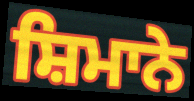
ਸ਼ਿਮਾਨੇ